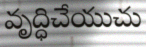
వృద్ధిచేయుచు